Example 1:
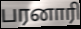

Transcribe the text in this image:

பரனாரி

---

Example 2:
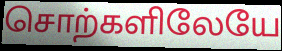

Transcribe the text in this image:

சொற்களிலேயே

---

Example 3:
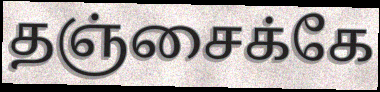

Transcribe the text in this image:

தஞ்சைக்கே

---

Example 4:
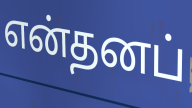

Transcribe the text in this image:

என்தனப்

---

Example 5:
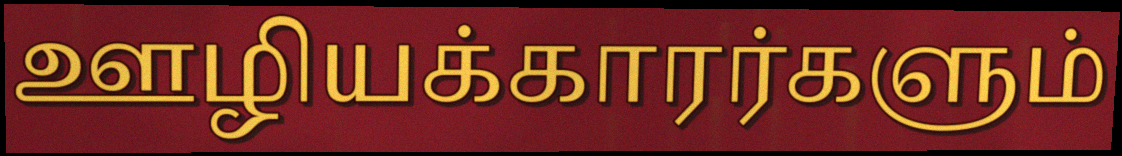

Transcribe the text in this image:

ஊழியக்காரர்களும்